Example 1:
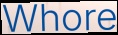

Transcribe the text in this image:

Whore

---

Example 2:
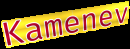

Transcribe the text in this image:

Kamenev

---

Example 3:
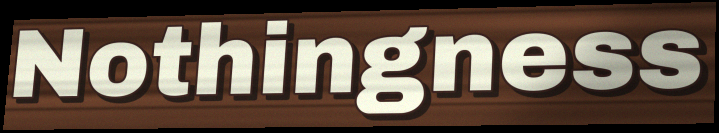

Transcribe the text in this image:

Nothingness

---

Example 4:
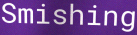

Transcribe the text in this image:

Smishing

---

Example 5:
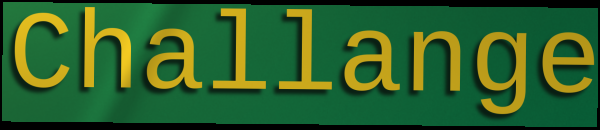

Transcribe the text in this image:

Challange